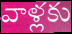
వాళ్లకు